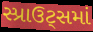
સ્પ્રાઉટ્સમાં